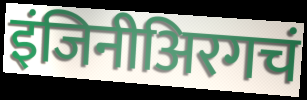
इंजिनीअिरगचं